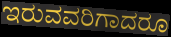
ಇರುವವರಿಗಾದರೂ